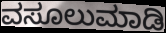
ವಸೂಲುಮಾಡಿ